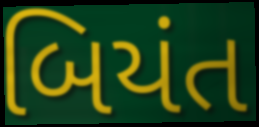
બિયંત